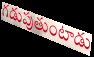
గడుపుతుంటాడు